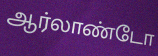
ஆர்லாண்டோ